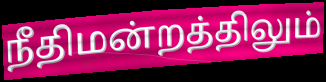
நீதிமன்றத்திலும்